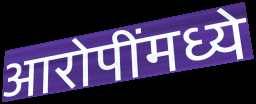
आरोपींमध्ये